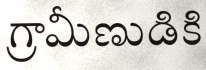
గ్రామీణుడికి